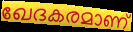
ഖേദകരമാണ്